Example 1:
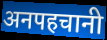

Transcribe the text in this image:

अनपहचानी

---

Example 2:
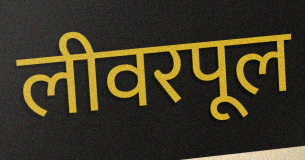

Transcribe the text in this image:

लीवरपूल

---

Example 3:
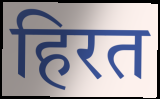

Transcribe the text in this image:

हिरत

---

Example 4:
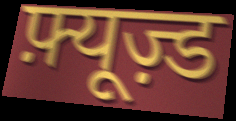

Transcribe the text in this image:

फ़्यूज़्ड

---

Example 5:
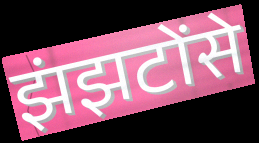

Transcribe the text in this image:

झंझटोंसे